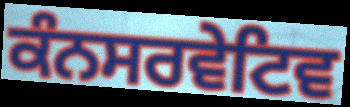
ਕੰਨਸਰਵੇਟਿਵ